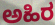
ಅಹಿರ